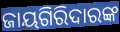
ଜାୟଗିରିଦାରଙ୍କ